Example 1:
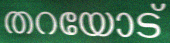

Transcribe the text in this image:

തറയോട്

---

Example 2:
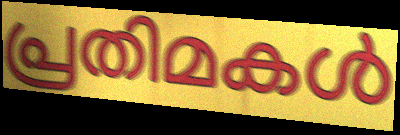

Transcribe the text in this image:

പ്രതിമകൾ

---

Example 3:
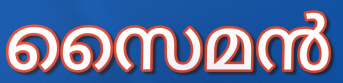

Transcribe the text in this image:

സൈമൻ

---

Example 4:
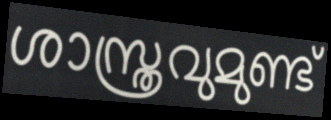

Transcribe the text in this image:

ശാസ്ത്രവുമുണ്ട്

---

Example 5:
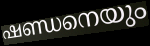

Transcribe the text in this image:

ഷണ്ഡനെയും